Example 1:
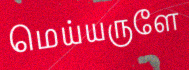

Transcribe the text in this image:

மெய்யருளே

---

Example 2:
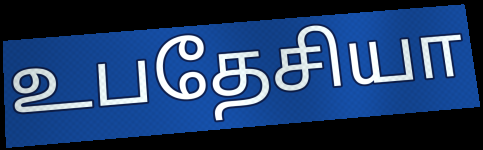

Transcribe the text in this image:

உபதேசியா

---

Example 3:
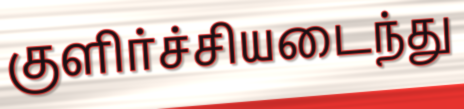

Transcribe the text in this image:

குளிர்ச்சியடைந்து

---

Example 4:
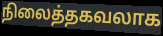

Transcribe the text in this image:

நிலைத்தகவலாக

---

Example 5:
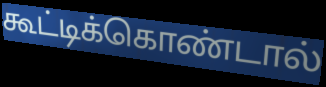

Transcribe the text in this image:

கூட்டிக்கொண்டால்